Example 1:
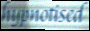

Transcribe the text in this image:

hypnotised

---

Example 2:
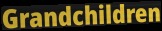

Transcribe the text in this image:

Grandchildren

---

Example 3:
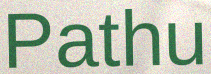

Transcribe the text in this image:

Pathu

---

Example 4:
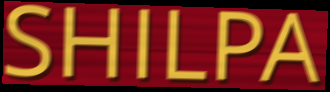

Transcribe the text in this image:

SHILPA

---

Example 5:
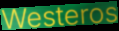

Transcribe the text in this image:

Westeros